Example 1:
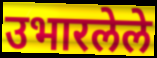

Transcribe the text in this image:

उभारलेले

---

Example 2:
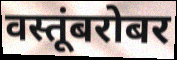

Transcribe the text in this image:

वस्तूंबरोबर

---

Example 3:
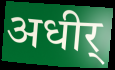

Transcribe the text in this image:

अधीर्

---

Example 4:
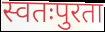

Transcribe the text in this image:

स्वतःपुरता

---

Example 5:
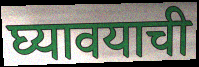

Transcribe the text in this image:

घ्यावयाची